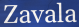
Zavala